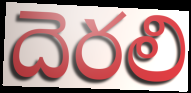
దెరలి